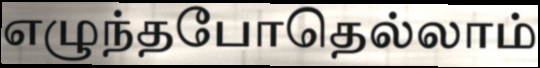
எழுந்தபோதெல்லாம்